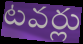
టవర్లు